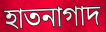
হাতনাগাদ